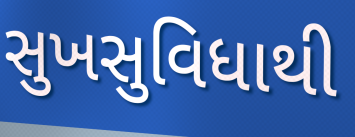
સુખસુવિધાથી